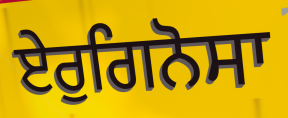
ਏਰੁਗਿਨੋਸਾ